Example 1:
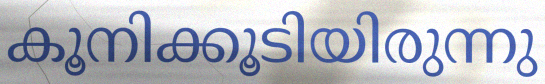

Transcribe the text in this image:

കൂനിക്കൂടിയിരുന്നു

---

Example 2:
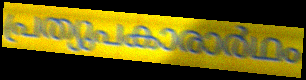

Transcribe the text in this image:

പ്രത്യുപകാരാർഥം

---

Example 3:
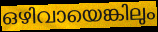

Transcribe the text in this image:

ഒഴിവായെങ്കിലും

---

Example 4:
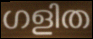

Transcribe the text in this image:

ഗളിത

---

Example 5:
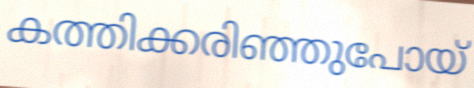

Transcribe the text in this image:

കത്തിക്കരിഞ്ഞുപോയ്